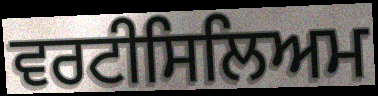
ਵਰਟੀਸਿਲਿਅਮ